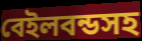
বেইলবন্ডসহ